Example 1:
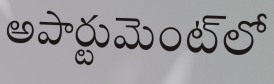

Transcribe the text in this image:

అపార్టుమెంట్‌లో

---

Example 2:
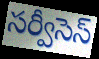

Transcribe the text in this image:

సర్వీసెస్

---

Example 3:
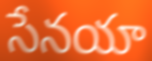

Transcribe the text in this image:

సేనయా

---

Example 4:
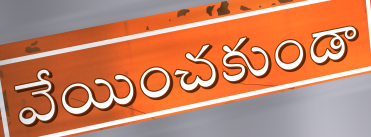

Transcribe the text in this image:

వేయించకుండా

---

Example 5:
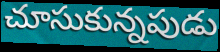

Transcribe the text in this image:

చూసుకున్నపుడు